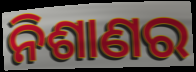
ନିଶାଣର